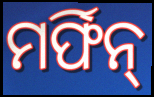
ମର୍ଫିନ୍